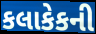
કલાકેકની